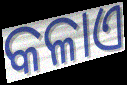
କଳାଏ